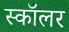
स्कॉलर